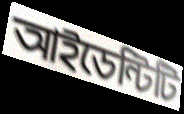
আইডেন্টিটি